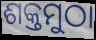
ଶକ୍ତମୁଠା